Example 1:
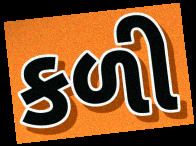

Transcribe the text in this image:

કળી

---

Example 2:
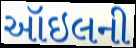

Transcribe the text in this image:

ઑઇલની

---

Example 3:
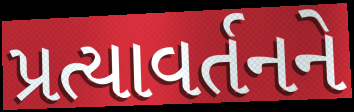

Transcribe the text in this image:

પ્રત્યાવર્તનને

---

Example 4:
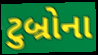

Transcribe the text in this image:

ટુબ્રોના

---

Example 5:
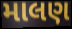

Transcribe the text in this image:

માલણ